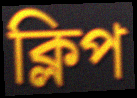
ক্লিপ